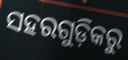
ସହରଗୁଡ଼ିକରୁ